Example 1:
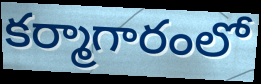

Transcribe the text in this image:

కర్మాగారంలో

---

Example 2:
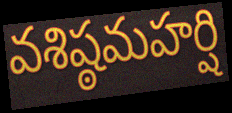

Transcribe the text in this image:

వశిష్ఠమహర్షి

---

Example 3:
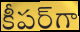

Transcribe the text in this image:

కీపర్‌గా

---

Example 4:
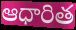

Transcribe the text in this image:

ఆధారిత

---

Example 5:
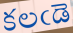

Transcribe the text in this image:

కలఁడె